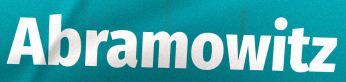
Abramowitz